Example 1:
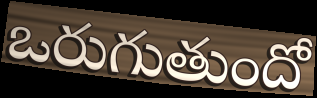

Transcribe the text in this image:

ఒరుగుతుందో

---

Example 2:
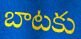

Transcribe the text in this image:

బాటకు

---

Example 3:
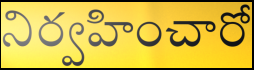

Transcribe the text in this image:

నిర్వహించారో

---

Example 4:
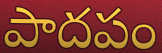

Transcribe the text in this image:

పాదపం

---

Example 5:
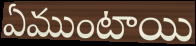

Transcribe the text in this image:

ఏముంటాయి